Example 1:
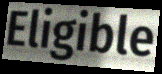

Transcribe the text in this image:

Eligible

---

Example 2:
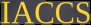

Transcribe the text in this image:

IACCS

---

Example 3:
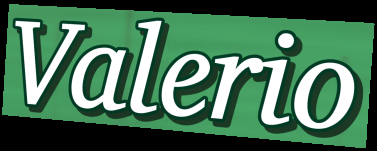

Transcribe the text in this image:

Valerio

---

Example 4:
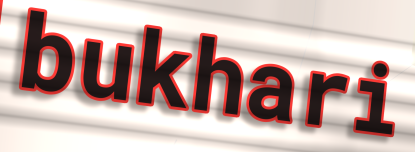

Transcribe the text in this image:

bukhari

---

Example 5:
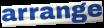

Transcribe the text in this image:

arrange